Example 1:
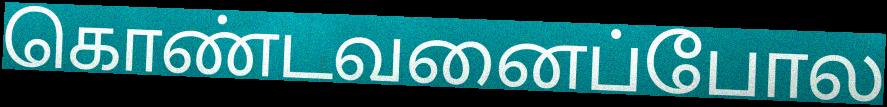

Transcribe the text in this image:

கொண்டவனைப்போல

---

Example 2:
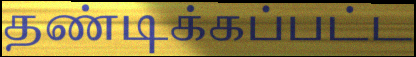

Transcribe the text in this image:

தண்டிக்கப்பட்ட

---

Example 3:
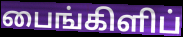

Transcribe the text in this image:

பைங்கிளிப்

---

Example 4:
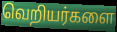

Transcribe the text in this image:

வெறியர்களை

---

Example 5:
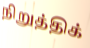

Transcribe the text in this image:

நிறுத்திக்